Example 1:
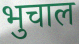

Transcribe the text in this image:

भुचाल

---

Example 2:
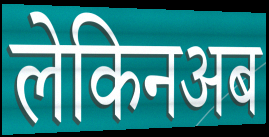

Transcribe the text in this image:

लेकिनअब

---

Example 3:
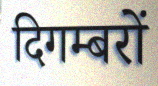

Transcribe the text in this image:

दिगम्बरों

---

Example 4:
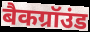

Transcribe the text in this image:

बैकग्रॉउंड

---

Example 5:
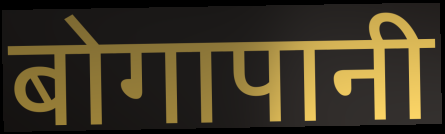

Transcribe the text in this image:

बोगापानी